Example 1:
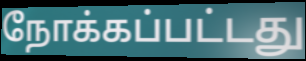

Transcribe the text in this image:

நோக்கப்பட்டது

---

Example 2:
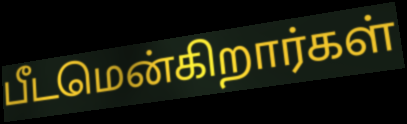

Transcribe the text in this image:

பீடமென்கிறார்கள்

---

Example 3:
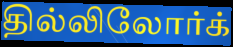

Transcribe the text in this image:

தில்லிலோர்க்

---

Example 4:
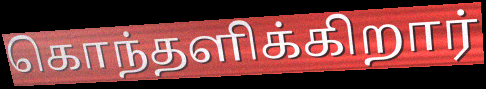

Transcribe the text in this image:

கொந்தளிக்கிறார்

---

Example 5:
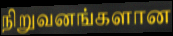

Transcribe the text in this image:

நிறுவனங்களான